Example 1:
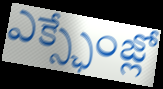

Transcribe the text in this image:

ఎక్స్ఛేంజ్లో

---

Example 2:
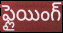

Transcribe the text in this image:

ఫ్లైయింగ్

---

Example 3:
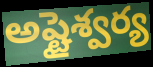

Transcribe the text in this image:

అష్టైశ్వర్య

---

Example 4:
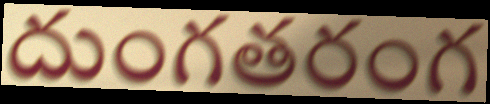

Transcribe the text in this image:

దుంగతరంగ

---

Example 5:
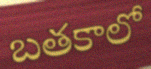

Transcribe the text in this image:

బతకాలో